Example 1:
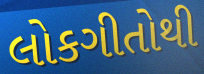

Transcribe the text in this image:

લોકગીતોથી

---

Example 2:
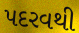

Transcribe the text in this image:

પદરવથી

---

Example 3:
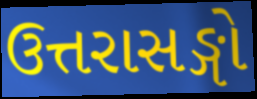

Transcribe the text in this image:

ઉત્તરાસઙ્ગો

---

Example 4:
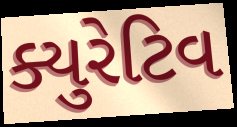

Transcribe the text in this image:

ક્યુરેટિવ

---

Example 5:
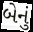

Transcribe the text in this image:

બેનું